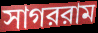
সাগররাম